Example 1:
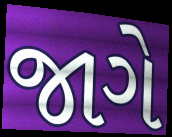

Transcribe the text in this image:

જાગે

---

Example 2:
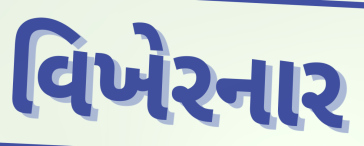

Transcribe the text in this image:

વિખેરનાર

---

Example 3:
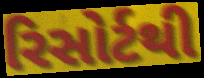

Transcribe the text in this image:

રિસોર્ટથી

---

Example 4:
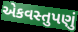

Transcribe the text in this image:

એકવસ્તુપણું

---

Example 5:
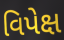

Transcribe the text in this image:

વિપેક્ષ